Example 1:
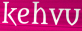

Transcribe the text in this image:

kehvu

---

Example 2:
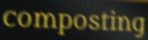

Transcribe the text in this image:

composting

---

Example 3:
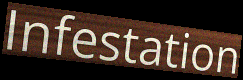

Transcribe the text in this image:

Infestation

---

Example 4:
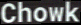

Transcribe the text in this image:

Chowk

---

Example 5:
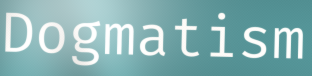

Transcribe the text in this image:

Dogmatism